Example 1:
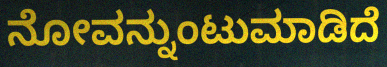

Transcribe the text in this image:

ನೋವನ್ನುಂಟುಮಾಡಿದೆ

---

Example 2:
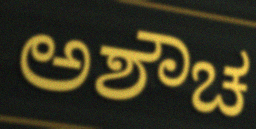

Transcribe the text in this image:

ಅಶೌಚ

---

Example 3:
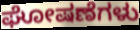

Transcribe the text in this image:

ಘೋಷಣೆಗಳು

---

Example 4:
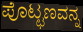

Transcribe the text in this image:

ಪೊಟ್ಟಣವನ್ನ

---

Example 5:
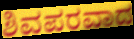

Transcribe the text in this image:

ಶಿವಪರವಾದ